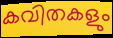
കവിതകളും